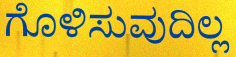
ಗೊಳಿಸುವುದಿಲ್ಲ